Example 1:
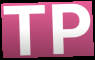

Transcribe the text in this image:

TP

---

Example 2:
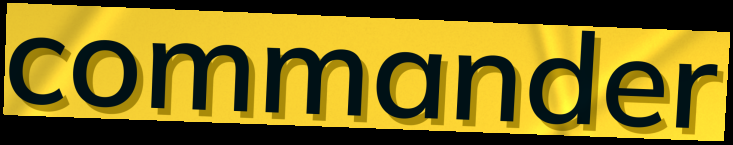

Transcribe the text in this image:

commander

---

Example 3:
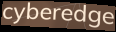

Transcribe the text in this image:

cyberedge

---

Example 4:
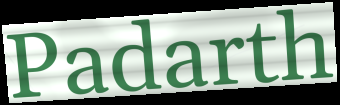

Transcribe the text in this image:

Padarth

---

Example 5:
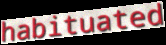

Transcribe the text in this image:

habituated